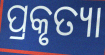
ପ୍ରକୃତ୍ୟା